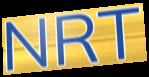
NRT